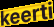
keerti